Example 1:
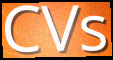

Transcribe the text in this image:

CVs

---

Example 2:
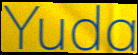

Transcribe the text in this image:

Yuda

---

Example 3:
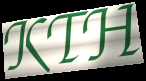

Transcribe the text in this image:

KTH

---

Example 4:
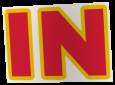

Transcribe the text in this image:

IN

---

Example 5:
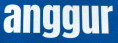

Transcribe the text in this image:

anggur